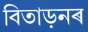
বিতাড়নৰ